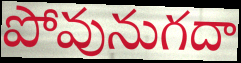
పోవునుగదా